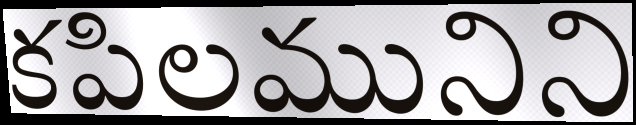
కపిలమునిని